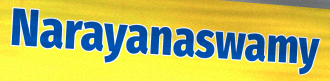
Narayanaswamy